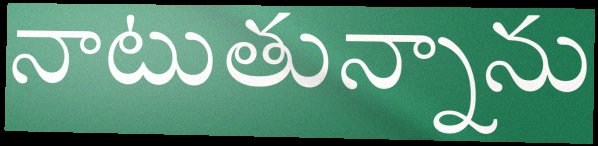
నాటుతున్నాను